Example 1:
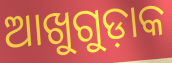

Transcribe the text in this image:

ଆଖୁଗୁଡ଼ାକ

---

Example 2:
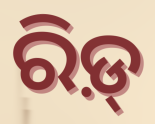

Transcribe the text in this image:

ରିଡ଼୍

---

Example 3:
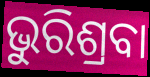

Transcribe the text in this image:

ଭୁରିଶ୍ରବା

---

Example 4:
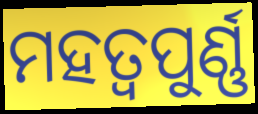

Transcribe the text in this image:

ମହତ୍ୱପୁର୍ଣ୍ଣ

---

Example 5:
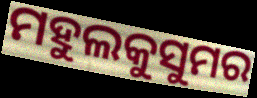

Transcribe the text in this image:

ମହୁଲକୁସୁମର